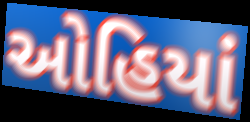
ઓહિયાં